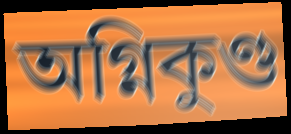
অগ্নিকুণ্ড